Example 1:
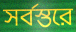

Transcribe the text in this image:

সর্বস্তরে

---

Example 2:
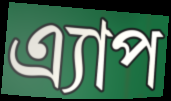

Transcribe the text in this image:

এ্যাপ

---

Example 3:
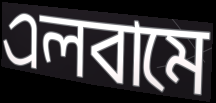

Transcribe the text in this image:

এলবামে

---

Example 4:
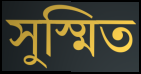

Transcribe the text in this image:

সুস্মিত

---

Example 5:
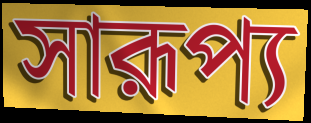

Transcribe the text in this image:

সারূপ্য